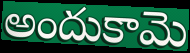
అందుకామె